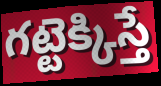
గట్టెక్కిస్తే